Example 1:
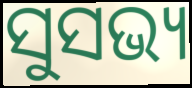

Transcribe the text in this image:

ସୁସଭ୍ୟ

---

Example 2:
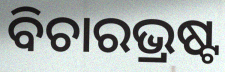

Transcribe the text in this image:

ବିଚାରଭ୍ରଷ୍ଟ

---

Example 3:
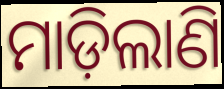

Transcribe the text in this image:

ମାଡ଼ିଲାଣି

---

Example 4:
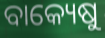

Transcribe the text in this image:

ବାକ୍ୟେଷୁ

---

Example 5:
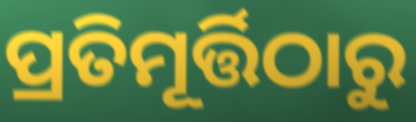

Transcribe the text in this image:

ପ୍ରତିମୂର୍ତ୍ତିଠାରୁ